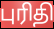
புரிதி